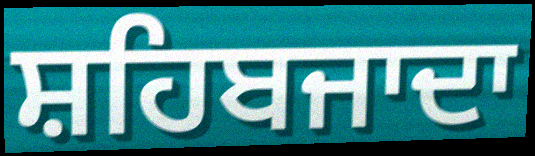
ਸ਼ਹਿਬਜਾਦਾ